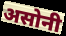
असोनी